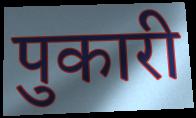
पुकारी